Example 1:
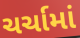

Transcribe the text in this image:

ચર્ચામાં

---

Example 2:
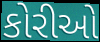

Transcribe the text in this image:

કોરીઓ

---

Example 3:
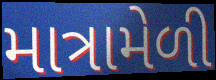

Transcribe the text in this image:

માત્રામેળી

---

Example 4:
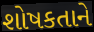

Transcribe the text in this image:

શોષકતાને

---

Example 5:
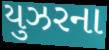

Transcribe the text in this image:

યુઝરના